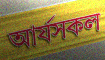
আৰ্যসকল